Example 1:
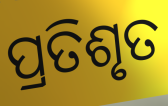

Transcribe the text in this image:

ପ୍ରତିଶୃତ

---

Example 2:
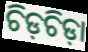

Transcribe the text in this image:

ଚିଡ଼ଚିଡ଼ା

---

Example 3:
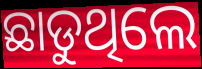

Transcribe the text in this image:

ଛାଡୁଥିଲେ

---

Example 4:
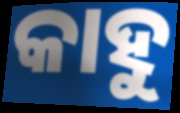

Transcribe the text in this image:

କାହୁ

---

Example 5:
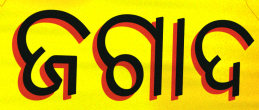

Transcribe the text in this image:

ଜଗାଦ